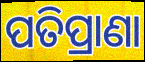
ପତିପ୍ରାଣା